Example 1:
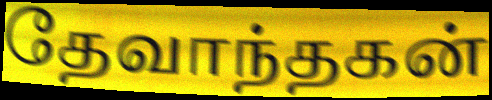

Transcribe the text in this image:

தேவாந்தகன்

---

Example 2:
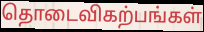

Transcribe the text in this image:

தொடைவிகற்பங்கள்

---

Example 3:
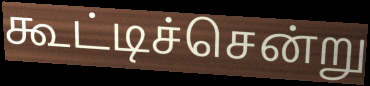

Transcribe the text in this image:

கூட்டிச்சென்று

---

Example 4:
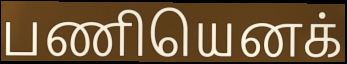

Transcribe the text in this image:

பணியெனக்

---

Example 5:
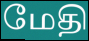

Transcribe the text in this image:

மேதி